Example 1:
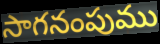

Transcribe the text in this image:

సాగనంపుము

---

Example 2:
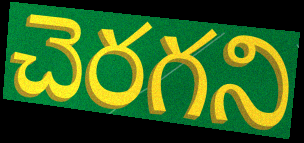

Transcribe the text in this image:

చెరగని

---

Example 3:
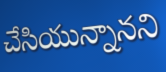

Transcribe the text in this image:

చేసియున్నానని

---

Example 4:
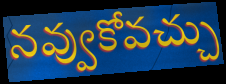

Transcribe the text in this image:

నవ్వుకోవచ్చు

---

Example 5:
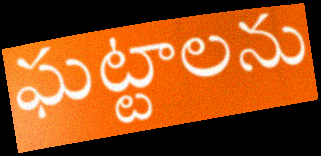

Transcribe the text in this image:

ఘట్టాలను